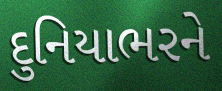
દુનિયાભરને